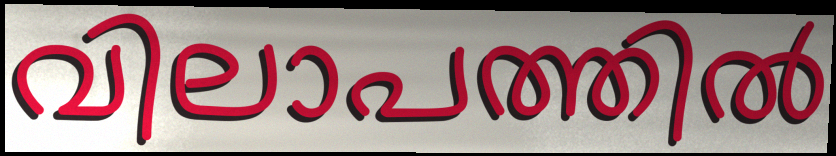
വിലാപത്തിൽ